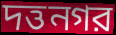
দত্তনগর